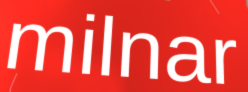
milnar